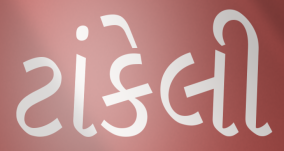
ટાંકેલી